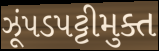
ઝૂંપડપટ્ટીમુક્ત